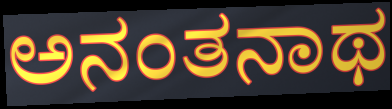
ಅನಂತನಾಥ